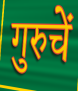
गुरुचें